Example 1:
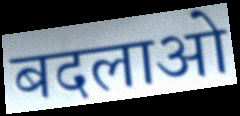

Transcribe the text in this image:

बदलाओ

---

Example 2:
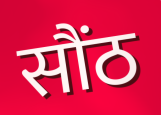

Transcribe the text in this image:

सौंठ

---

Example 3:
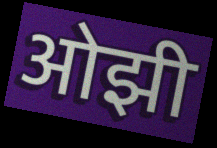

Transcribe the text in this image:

ओझी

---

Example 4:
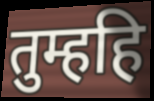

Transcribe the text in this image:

तुम्हहि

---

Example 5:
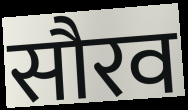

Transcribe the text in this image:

सौरव